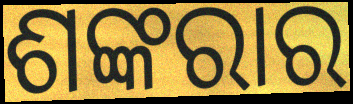
ଶଙ୍କରାର